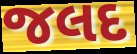
જલદ